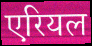
एरियल